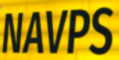
NAVPS